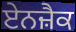
ਏਨਜ਼ੈਕ